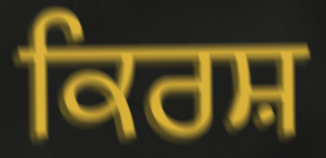
ਕਿਰਸ਼